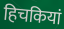
हिचकियां